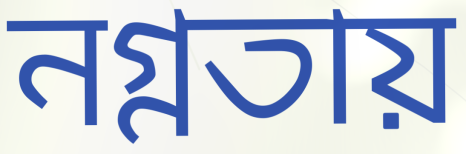
নগ্নতায়